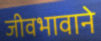
जीवभावाने